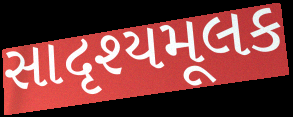
સાદૃશ્યમૂલક